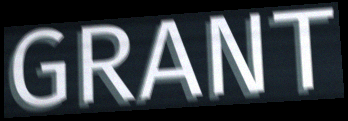
GRANT